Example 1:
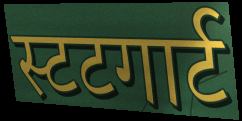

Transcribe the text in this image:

स्टटगार्ट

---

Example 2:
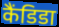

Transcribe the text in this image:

कैंडिडा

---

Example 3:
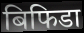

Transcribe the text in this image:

बिफिडा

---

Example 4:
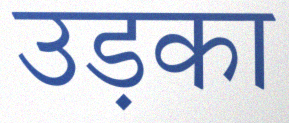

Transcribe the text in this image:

उड़का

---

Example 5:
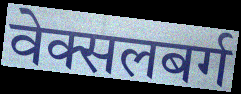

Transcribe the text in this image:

वेक्सलबर्ग